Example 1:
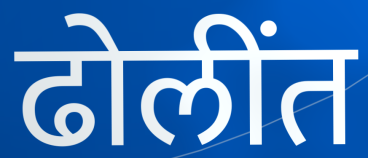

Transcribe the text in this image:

ढोलींत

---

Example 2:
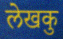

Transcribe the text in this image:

लेखकु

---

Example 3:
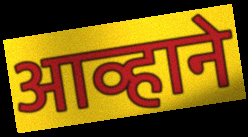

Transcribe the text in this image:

आव्हाने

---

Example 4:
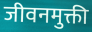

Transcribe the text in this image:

जीवनमुक्ती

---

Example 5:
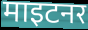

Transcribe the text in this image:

माइटनर